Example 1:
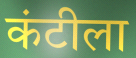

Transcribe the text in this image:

कंटीला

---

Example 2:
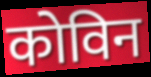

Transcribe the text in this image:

कोविन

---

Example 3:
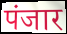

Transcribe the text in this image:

पंजार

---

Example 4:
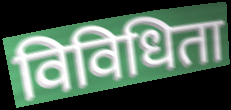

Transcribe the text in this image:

विविधिता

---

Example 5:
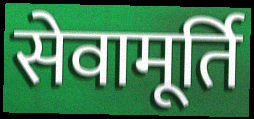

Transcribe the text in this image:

सेवामूर्ति